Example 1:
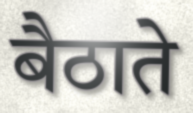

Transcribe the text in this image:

बैठाते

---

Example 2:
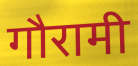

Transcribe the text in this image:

गौरामी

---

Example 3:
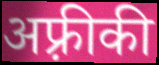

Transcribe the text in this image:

अफ़्रीकी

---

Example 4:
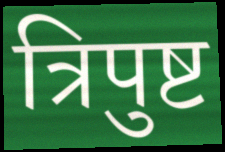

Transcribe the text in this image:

त्रिपुष्ट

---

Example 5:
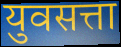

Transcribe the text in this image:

युवसत्ता